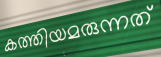
കത്തിയമരുന്നത്